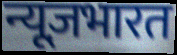
न्यूज़भारत